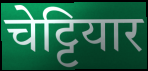
चेट्टियार